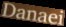
Danaei